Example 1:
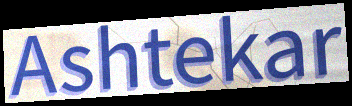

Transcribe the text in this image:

Ashtekar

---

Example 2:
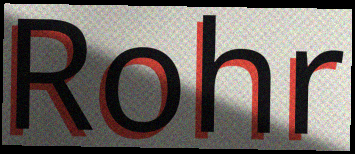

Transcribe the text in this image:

Rohr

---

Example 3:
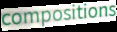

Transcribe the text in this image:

compositions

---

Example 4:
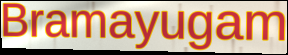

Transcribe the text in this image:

Bramayugam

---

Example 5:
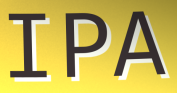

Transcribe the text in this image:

IPA